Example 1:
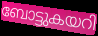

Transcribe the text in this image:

ബോട്ടുകയറി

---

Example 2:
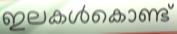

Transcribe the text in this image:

ഇലകൾകൊണ്ട്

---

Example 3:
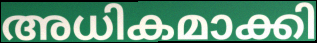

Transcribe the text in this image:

അധികമാക്കി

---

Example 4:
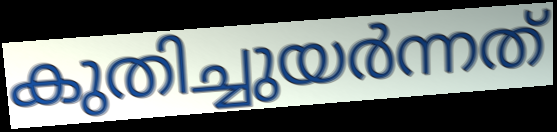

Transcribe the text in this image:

കുതിച്ചുയർന്നത്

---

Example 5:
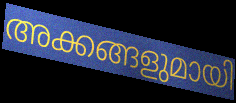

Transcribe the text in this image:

അക്കങ്ങളുമായി